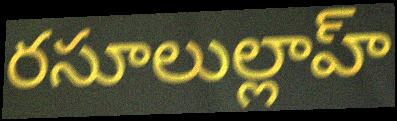
రసూలుల్లాహ్